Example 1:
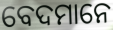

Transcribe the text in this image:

ବେଦମାନେ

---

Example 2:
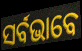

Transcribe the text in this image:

ସର୍ବଭାବେ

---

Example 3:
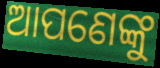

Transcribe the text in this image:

ଆପଣେଙ୍କୁ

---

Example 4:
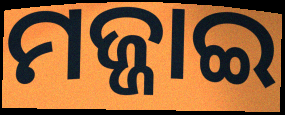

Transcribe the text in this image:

ମଜ୍ଜାଇ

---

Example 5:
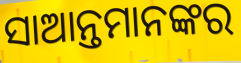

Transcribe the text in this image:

ସାଆନ୍ତମାନଙ୍କର